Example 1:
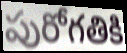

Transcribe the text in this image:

పురోగతికి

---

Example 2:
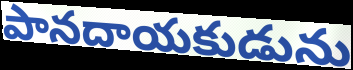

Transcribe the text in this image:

పానదాయకుడును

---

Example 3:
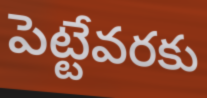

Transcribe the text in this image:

పెట్టేవరకు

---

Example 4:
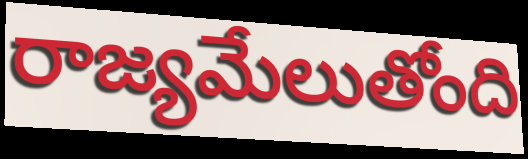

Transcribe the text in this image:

రాజ్యమేలుతోంది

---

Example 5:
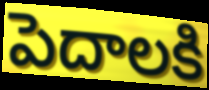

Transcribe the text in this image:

పెదాలకి